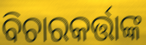
ବିଚାରକର୍ତ୍ତାଙ୍କ